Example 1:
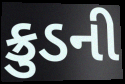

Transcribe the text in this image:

ક્રુડની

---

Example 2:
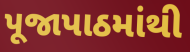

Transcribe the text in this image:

પૂજાપાઠમાંથી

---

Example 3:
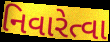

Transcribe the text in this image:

નિવારેત્વા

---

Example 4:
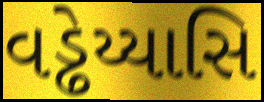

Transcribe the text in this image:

વડ્ઢેય્યાસિ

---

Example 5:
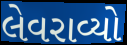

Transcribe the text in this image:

લેવરાવ્યો